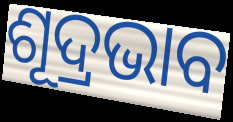
ଶୂଦ୍ରଭାବ